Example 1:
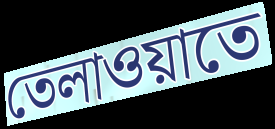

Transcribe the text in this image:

তেলাওয়াতে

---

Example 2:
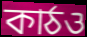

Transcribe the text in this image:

কাঠও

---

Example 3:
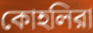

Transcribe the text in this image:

কোহলিরা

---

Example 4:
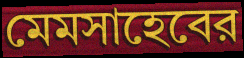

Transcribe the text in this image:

মেমসাহেবের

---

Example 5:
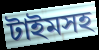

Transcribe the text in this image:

টাইমসহ